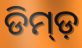
ଡିମ୍ଡ଼